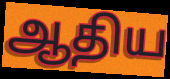
ஆதிய